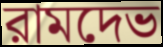
রামদেভ